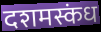
दशमस्कंध